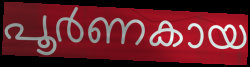
പൂർണകായ